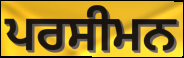
ਪਰਸੀਮਨ